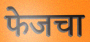
फेजचा